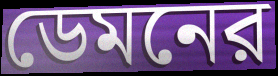
ডেমনের